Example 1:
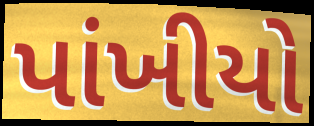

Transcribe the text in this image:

પાંખીયો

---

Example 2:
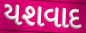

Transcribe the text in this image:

યશવાદ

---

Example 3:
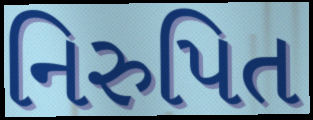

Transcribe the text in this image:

નિરુપિત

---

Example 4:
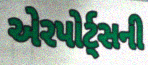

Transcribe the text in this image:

એરપોર્ટ્સની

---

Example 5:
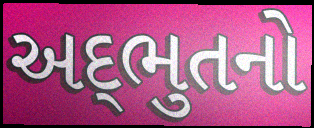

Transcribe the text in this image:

અદ્‌ભુતનો